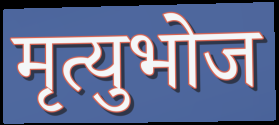
मृत्युभोज